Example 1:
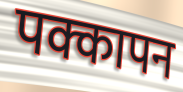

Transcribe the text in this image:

पक्कापन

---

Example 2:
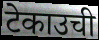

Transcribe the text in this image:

टेकाउची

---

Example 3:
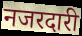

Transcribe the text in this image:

नजरदारी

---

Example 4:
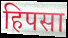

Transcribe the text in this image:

हिपसा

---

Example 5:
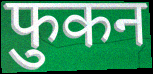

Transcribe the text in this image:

फुकन